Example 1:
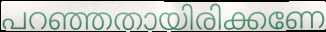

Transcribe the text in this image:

പറഞ്ഞതായിരിക്കണേ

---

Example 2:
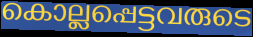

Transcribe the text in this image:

കൊല്ലപ്പെട്ടവരുടെ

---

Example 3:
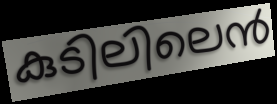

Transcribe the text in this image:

കുടിലിലെൻ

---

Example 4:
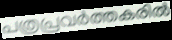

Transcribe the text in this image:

പത്രപ്രവർത്തകരിൽ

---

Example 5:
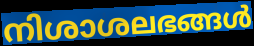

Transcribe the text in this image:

നിശാശലഭങ്ങൾ